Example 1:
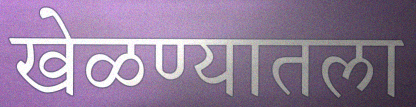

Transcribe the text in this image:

खेळण्यातला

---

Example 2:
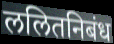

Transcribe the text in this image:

ललितनिबंध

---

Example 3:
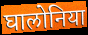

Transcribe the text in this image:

घालोनिया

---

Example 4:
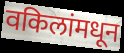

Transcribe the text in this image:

वकिलांमधून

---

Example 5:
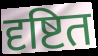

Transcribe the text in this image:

दृष्टित